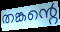
തങ്കന്റെ